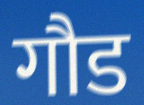
गौड